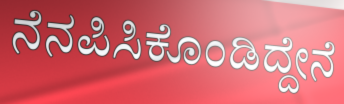
ನೆನಪಿಸಿಕೊಂಡಿದ್ದೇನೆ